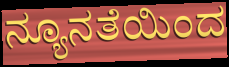
ನ್ಯೂನತೆಯಿಂದ